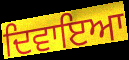
ਦਿਵਾਇਆ